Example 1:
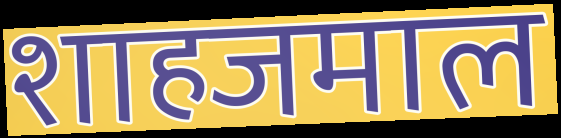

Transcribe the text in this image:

शाहजमाल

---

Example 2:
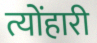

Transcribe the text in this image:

त्योंहारी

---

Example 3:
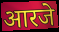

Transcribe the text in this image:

आरजे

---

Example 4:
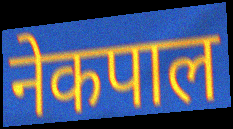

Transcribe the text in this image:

नेकपाल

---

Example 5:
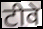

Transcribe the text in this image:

टीवे